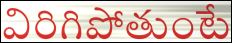
విరిగిపోతుంటే